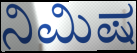
ನಿಮಿಷ